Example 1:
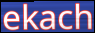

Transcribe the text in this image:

ekach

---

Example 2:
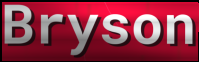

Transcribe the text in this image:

Bryson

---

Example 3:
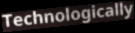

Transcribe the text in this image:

Technologically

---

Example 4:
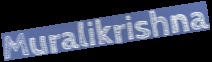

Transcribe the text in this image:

Muralikrishna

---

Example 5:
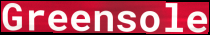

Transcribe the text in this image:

Greensole